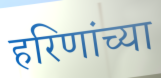
हरिणांच्या